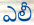
ఎలీ